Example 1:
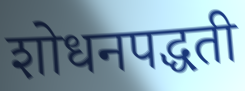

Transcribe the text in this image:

शोधनपद्धती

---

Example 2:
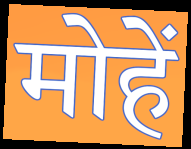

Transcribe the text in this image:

मोहें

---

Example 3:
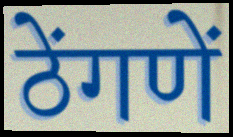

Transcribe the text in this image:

ठेंगणें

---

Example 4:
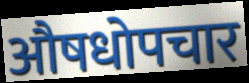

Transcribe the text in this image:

औषधोपचार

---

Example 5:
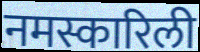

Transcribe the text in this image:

नमस्कारिली